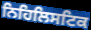
ਨਿਹਿਲਿਸਟਿਕ